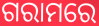
ଗରାମରେ